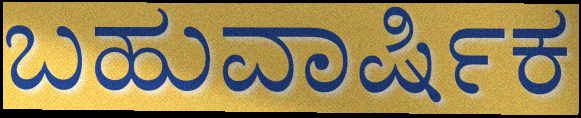
ಬಹುವಾರ್ಷಿಕ